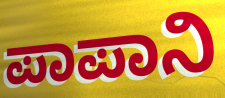
ಪಾಪಾನಿ